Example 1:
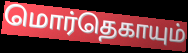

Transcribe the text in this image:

மொர்தெகாயும்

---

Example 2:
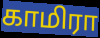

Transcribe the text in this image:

காமிரா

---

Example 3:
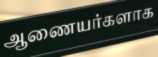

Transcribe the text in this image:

ஆணையர்களாக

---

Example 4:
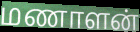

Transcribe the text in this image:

மணாளன்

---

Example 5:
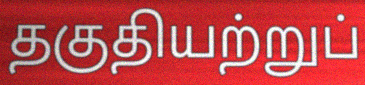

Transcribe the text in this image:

தகுதியற்றுப்